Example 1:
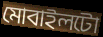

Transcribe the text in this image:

মোবাইলটো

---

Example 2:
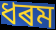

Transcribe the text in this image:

ধৰম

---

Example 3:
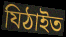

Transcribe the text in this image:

যিঠাইত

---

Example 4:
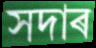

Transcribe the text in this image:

সদাৰ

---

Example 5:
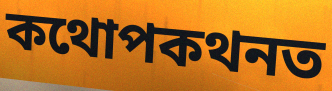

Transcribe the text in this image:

কথোপকথনত